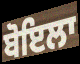
ਬੋਇਲਾ